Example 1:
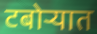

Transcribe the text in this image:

टबोऱ्यात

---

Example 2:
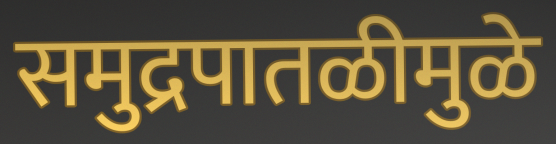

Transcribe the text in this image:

समुद्रपातळीमुळे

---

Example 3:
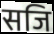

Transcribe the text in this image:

सजि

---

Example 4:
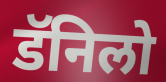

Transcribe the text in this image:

डॅनिलो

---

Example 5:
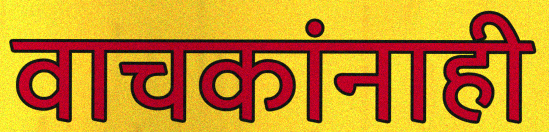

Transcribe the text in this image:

वाचकांनाही